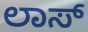
ಲಾಸ್